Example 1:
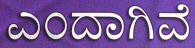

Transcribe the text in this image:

ಎಂದಾಗಿವೆ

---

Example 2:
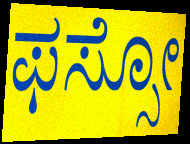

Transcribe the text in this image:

ಫಸ್ಸೋ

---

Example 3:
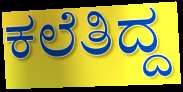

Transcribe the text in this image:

ಕಲೆತಿದ್ದ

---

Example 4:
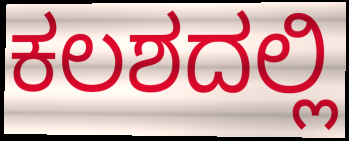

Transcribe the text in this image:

ಕಲಶದಲ್ಲಿ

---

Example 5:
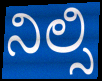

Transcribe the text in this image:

ನಿಲ್ಸಿ